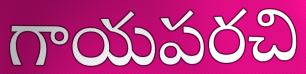
గాయపరచి